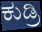
ಕುಡ್ರಿ